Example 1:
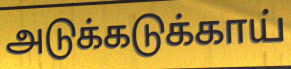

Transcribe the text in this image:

அடுக்கடுக்காய்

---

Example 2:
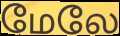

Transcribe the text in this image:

மேலே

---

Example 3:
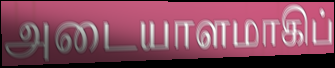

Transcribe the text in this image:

அடையாளமாகிப்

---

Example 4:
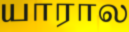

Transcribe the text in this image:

யாரால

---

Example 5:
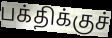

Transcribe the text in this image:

பக்திக்குச்